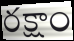
రక్షాం